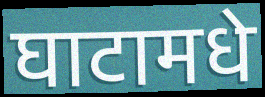
घाटामधे